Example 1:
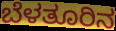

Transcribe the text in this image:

ಬೆಳತೂರಿನ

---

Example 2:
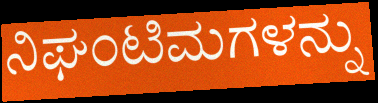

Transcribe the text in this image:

ನಿಘಂಟಿಮಗಳನ್ನು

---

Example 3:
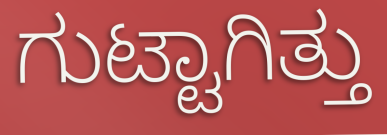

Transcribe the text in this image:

ಗುಟ್ಟಾಗಿತ್ತು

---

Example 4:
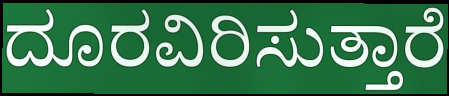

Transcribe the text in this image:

ದೂರವಿರಿಸುತ್ತಾರೆ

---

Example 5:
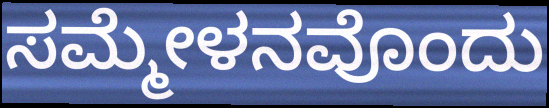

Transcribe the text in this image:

ಸಮ್ಮೇಳನವೊಂದು